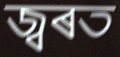
জ্বৰত